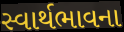
સ્વાર્થભાવના